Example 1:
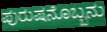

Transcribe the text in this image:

ಪುರುಷನೊಬ್ಬನು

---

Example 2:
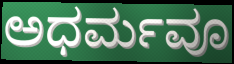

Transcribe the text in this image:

ಅಧರ್ಮವೂ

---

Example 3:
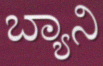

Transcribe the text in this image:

ಬ್ಯಾನಿ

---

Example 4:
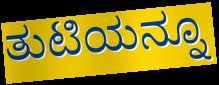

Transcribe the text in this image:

ತುಟಿಯನ್ನೂ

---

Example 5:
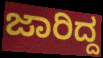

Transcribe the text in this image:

ಜಾರಿದ್ದ